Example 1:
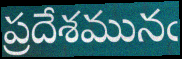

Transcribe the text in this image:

ప్రదేశమునఁ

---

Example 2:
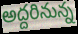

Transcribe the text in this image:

అద్దరినున్న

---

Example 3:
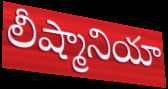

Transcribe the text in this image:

లీష్మానియా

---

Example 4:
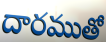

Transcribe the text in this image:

దారముతో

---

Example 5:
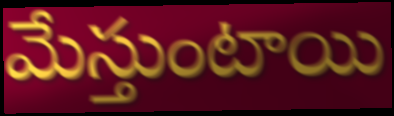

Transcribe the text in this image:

మేస్తుంటాయి